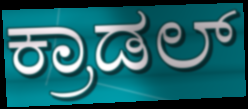
ಕ್ರಾಡಲ್